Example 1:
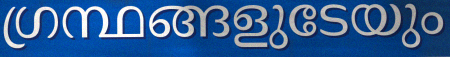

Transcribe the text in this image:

ഗ്രന്ഥങ്ങളുടേയും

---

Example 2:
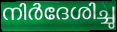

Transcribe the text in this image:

നിർദേശിച്ചു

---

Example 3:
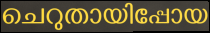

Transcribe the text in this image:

ചെറുതായിപ്പോയ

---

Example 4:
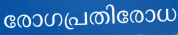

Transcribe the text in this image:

രോഗപ്രതിരോധ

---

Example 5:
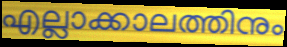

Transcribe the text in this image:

എല്ലാക്കാലത്തിനും